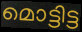
മൊട്ടിട്ട